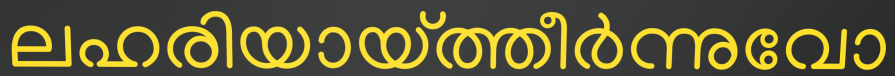
ലഹരിയായ്ത്തീർന്നുവോ